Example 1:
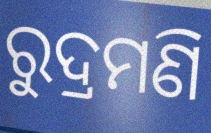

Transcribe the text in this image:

ରୁଦ୍ରମଣି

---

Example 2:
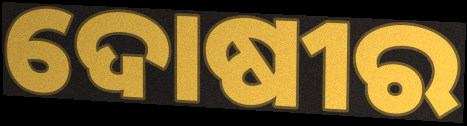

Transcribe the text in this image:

ଦୋଷୀର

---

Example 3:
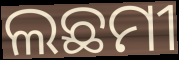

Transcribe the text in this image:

ଲଛମୀ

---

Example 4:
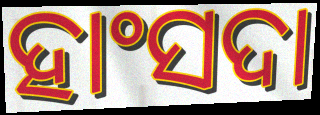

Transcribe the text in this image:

ହାଂସଦା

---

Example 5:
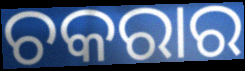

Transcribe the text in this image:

ଚକରାର